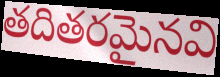
తదితరమైనవి